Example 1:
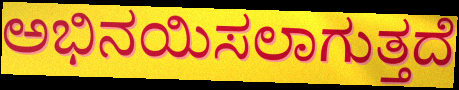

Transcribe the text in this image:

ಅಭಿನಯಿಸಲಾಗುತ್ತದೆ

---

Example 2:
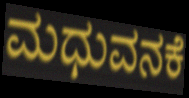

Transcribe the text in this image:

ಮಧುವನಕೆ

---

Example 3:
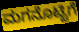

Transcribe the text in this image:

ಮಗನೊಟ್ಟಿಗೆ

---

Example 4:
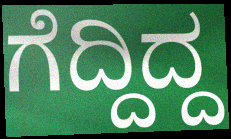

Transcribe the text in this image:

ಗೆದ್ದಿದ್ದ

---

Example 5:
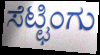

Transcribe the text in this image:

ಸೆಟ್ಟಿಂಗು